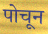
पोचून